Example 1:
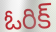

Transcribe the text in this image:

ఓరిక్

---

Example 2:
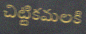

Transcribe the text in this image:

చిట్టికమలకి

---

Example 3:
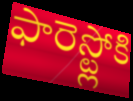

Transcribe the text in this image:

ఫారెస్ట్లోకి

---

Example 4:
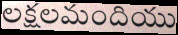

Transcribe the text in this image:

లక్షలమందియు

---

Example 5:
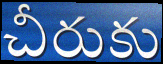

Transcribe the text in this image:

చీరుకు